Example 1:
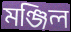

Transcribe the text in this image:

মঞ্জিল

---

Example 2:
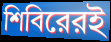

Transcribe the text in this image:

শিবিরেরই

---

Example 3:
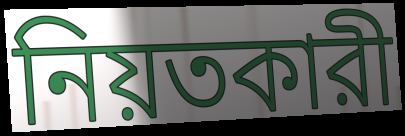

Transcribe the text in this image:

নিয়তকারী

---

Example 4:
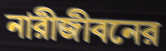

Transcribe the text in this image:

নারীজীবনের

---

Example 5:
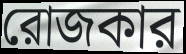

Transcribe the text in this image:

রোজকার